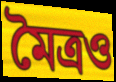
মৈত্রও